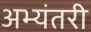
अभ्यंतरी